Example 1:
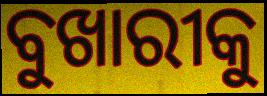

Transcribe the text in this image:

ବୁଖାରୀକୁ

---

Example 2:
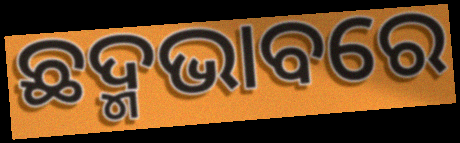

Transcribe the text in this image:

ଛଦ୍ମଭାବରେ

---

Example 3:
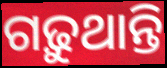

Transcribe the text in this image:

ଗଢ଼ୁଥାନ୍ତି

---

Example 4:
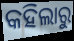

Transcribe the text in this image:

କହିଲାରୁ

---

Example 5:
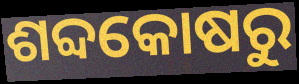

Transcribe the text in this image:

ଶବ୍ଦକୋଷରୁ